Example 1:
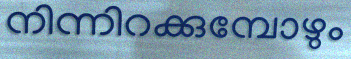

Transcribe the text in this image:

നിന്നിറക്കുമ്പോഴും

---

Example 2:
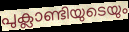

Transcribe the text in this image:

പുക്ലാണ്ടിയുടെയും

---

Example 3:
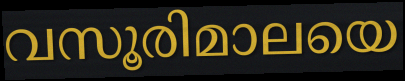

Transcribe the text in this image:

വസൂരിമാലയെ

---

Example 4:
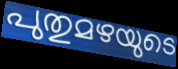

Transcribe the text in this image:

പുതുമഴയുടെ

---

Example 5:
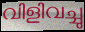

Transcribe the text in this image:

വിളിവച്ചു